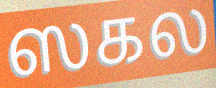
ஸகல